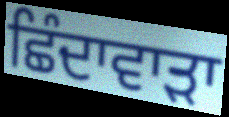
ਛਿੰਦਾਵਾੜਾ